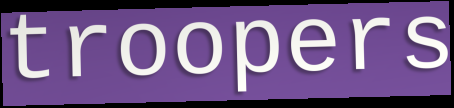
troopers